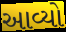
આવ્યો